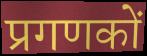
प्रगणकों